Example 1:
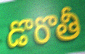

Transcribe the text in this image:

డొరొతీ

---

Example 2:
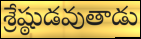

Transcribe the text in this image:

శ్రేష్ఠుడవుతాడు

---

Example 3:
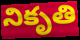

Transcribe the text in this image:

నికృతి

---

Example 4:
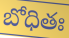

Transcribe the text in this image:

బోధితః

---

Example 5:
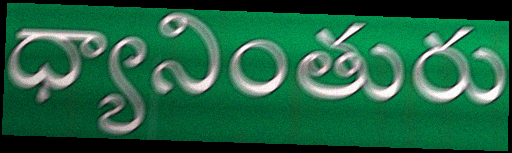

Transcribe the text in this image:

ధ్యానింతురు